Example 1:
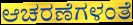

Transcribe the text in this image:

ಆಚರಣೆಗಳಂತೆ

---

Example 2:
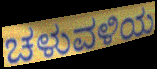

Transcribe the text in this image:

ಚಳುವಳಿಯ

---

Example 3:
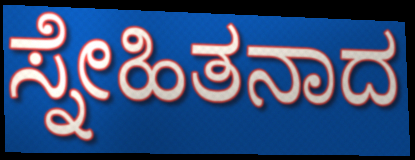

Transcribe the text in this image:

ಸ್ನೇಹಿತನಾದ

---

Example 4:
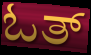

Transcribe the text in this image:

ಓತ್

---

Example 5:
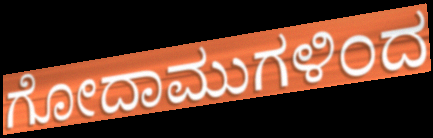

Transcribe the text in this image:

ಗೋದಾಮುಗಳಿಂದ